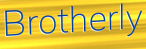
Brotherly